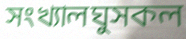
সংখ্যালঘুসকল